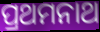
ପ୍ରଥମନାଥ